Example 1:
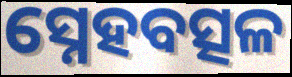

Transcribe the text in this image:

ସ୍ନେହବତ୍ସଳ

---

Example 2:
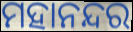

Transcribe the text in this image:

ମହାନନ୍ଦର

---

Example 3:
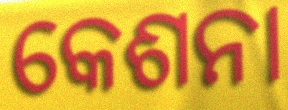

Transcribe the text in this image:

କେଶନା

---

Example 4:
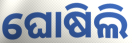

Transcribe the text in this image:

ଘୋଷିଲି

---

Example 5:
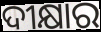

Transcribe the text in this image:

ଦୀକ୍ଷାର